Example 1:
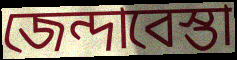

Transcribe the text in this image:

জেন্দাবেস্তা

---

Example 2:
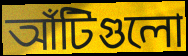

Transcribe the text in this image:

আঁটিগুলো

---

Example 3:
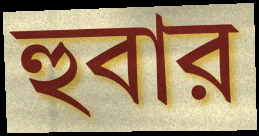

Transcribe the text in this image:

হুবার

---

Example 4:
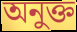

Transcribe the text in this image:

অনুক্ত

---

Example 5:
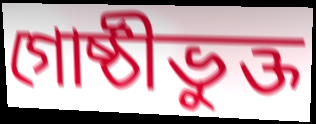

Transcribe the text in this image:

গোষ্ঠীভুক্ত